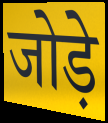
जोड़े